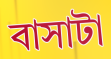
বাসাটা